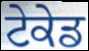
ਟੇਕੇਡ